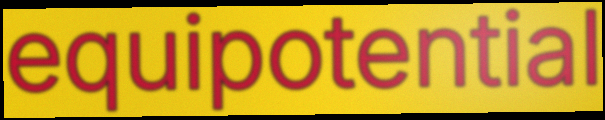
equipotential